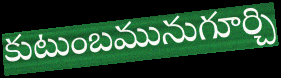
కుటుంబమునుగూర్చి